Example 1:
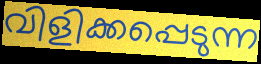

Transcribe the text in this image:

വിളിക്കപ്പെടുന്ന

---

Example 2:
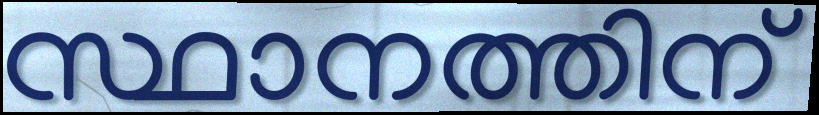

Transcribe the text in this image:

സ്ഥാനത്തിന്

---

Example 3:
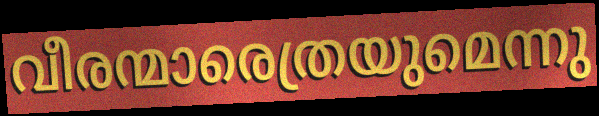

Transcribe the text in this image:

വീരന്മാരെത്രയുമെന്നു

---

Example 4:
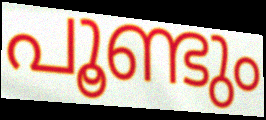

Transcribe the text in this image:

പൂണ്ടും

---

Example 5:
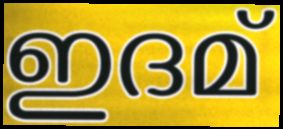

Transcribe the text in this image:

ഇദമ്